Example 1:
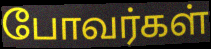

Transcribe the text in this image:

போவர்கள்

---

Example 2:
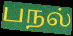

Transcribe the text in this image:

பநல்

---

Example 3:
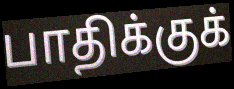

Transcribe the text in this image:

பாதிக்குக்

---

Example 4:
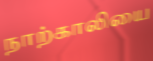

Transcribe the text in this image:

நாற்காலியை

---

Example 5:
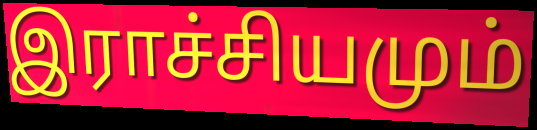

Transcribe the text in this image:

இராச்சியமும்